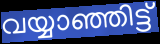
വയ്യാഞ്ഞിട്ട്